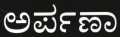
ಅರ್ಪಣಾ